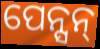
ପେନ୍ସନ୍